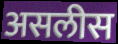
असलीस